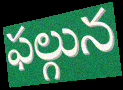
ఫల్గున